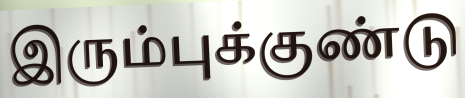
இரும்புக்குண்டு